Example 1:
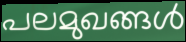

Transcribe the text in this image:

പലമുഖങ്ങൾ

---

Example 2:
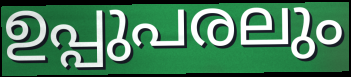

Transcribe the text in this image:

ഉപ്പുപരലും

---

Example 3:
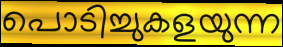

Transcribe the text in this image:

പൊടിച്ചുകളയുന്ന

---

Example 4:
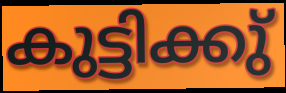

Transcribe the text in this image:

കുട്ടിക്കു്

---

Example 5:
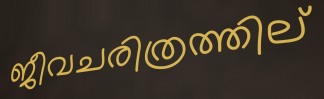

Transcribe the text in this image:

ജീവചരിത്രത്തില്